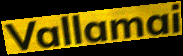
Vallamai